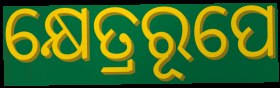
କ୍ଷେତ୍ରରୂପେ